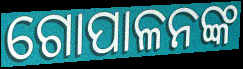
ଗୋପାଳନଙ୍କ